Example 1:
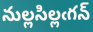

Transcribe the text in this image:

నుల్లసిల్లఁగన్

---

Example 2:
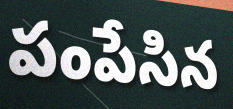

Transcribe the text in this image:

పంపేసిన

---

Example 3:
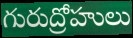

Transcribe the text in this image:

గురుద్రోహులు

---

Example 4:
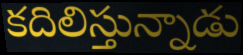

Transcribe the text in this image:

కదిలిస్తున్నాడు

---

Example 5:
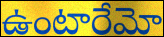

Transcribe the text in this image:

ఉంటారేమో